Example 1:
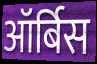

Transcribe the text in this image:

ऑर्बिस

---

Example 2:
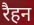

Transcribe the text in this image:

रैहन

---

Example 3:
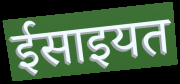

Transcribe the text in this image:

ईसाइयत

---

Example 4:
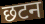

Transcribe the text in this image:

छटन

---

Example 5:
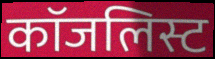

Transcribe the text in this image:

कॉजलिस्ट